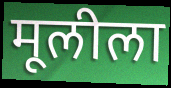
मूलीला